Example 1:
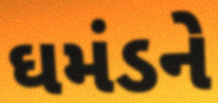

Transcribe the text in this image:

ઘમંડને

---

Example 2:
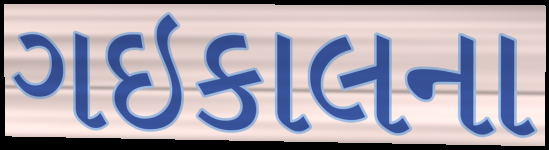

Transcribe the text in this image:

ગઇકાલના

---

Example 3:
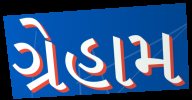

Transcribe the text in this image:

ગ્રેહામ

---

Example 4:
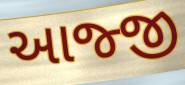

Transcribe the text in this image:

આજ્જી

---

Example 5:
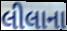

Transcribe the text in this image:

લીલાના